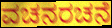
ವಚನರಚನೆ